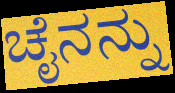
ಚೈನನ್ನು